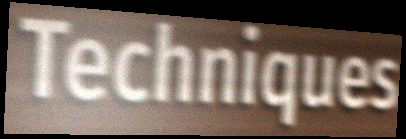
Techniques